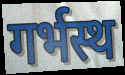
गर्भस्थ